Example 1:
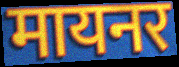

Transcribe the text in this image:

मायनर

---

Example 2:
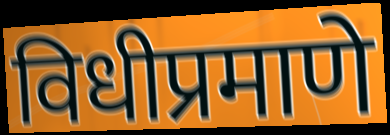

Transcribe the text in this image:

विधीप्रमाणे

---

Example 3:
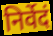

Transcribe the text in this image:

निर्वेदं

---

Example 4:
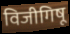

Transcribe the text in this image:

विजीगिषू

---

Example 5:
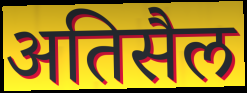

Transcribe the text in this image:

अतिसैल